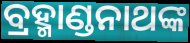
ବ୍ରହ୍ମାଣ୍ଡନାଥଙ୍କ